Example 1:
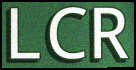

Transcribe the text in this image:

LCR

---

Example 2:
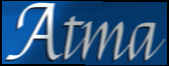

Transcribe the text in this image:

Atma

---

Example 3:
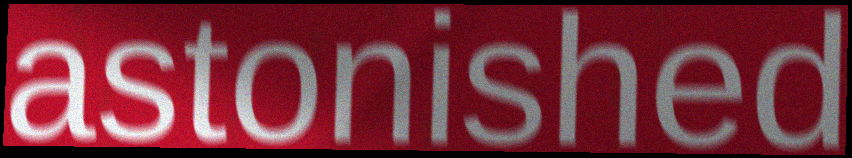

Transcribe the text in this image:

astonished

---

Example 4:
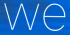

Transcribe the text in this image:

we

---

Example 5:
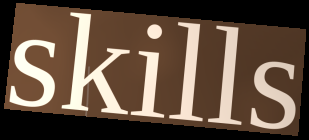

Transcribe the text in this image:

skills